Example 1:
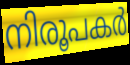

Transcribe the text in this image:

നിരൂപകർ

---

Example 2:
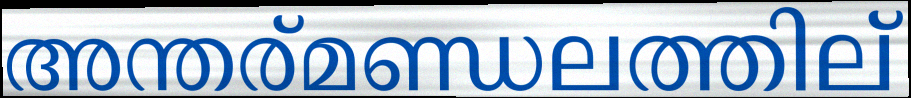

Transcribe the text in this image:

അന്തര്മണ്ഡലത്തില്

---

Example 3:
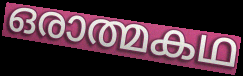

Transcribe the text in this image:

ഒരാത്മകഥ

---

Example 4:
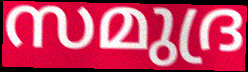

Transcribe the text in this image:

സമുദ്ര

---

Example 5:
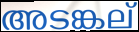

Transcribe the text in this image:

അടങ്കല്